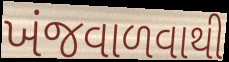
ખંજવાળવાથી